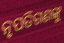
ନୃପତିଗଣଙ୍କୁ